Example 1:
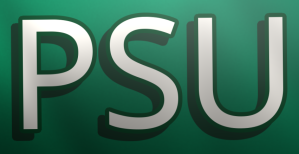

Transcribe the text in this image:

PSU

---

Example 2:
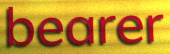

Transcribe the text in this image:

bearer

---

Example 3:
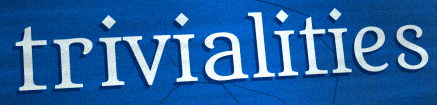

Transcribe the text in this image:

trivialities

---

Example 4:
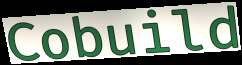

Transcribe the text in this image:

Cobuild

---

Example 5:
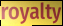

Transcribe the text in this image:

royalty